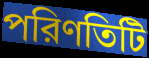
পরিণতিটি